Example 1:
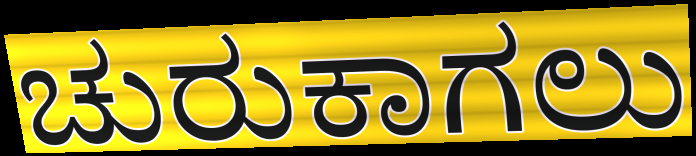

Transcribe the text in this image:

ಚುರುಕಾಗಲು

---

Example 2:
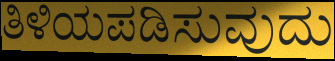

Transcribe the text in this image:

ತಿಳಿಯಪಡಿಸುವುದು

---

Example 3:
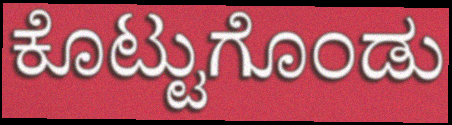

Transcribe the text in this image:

ಕೊಟ್ಟುಗೊಂಡು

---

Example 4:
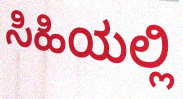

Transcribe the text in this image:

ಸಿಹಿಯಲ್ಲಿ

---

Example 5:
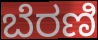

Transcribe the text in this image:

ಬೆರಣಿ